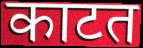
काटत